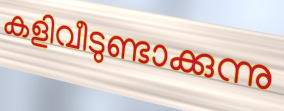
കളിവീടുണ്ടാക്കുന്നു